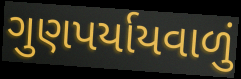
ગુણપર્યાયવાળું